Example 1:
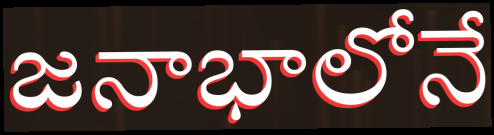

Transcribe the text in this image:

జనాభాలోనే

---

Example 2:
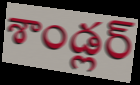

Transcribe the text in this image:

శాండ్లర్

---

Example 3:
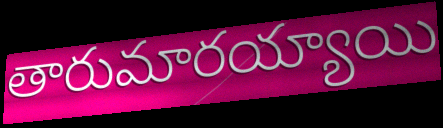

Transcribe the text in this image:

తారుమారయ్యాయి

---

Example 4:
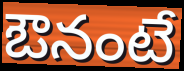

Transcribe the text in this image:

ఔనంటే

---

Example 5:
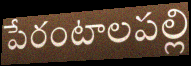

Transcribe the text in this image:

పేరంటాలపల్లి